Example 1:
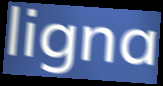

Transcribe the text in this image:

ligna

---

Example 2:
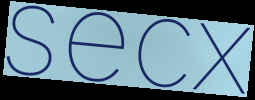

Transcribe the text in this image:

secx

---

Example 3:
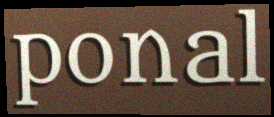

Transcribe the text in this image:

ponal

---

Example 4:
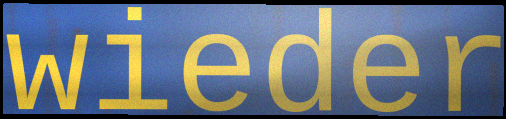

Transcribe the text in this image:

wieder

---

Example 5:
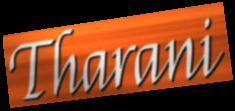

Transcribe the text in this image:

Tharani